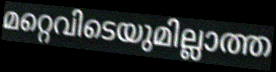
മറ്റെവിടെയുമില്ലാത്ത